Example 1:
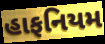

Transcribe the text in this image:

હાફનિયમ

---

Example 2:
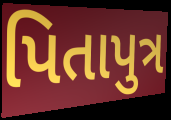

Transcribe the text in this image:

પિતાપુત્ર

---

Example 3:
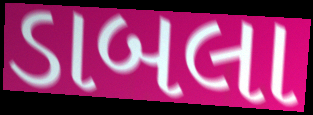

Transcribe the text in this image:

ડાબલા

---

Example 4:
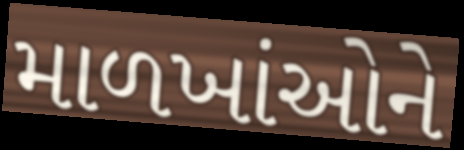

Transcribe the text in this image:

માળખાંઓને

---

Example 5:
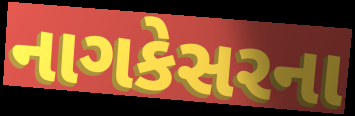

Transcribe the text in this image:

નાગકેસરના